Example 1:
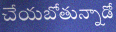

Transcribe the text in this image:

చేయబోతున్నాడో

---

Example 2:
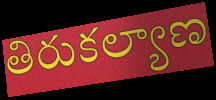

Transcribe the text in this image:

తిరుకల్యాణ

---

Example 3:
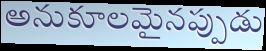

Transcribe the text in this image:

అనుకూలమైనప్పుడు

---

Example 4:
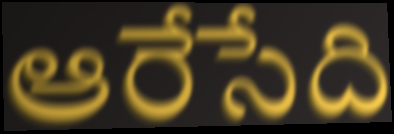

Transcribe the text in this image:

ఆరేసేది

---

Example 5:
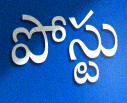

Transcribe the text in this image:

పోస్టు